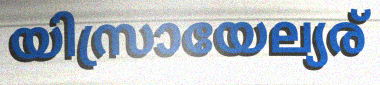
യിസ്രായേല്യര്